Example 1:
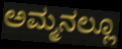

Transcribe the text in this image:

ಅಮ್ಮನಲ್ಲೂ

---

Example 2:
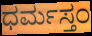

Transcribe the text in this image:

ಧರ್ಮಸ್ತಂ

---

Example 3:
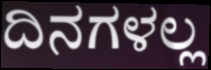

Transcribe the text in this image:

ದಿನಗಳಲ್ಲ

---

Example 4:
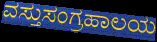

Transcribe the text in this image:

ವಸ್ತುಸಂಗ್ರಹಾಲಯ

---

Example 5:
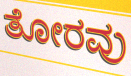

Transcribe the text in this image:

ತೋರವು